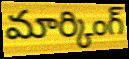
మార్కింగ్